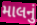
માલનું